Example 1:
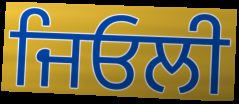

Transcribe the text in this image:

ਜਿਓਲੀ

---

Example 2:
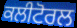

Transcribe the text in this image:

ਕਲੀਟੋਰਲ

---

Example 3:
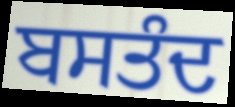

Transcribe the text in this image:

ਬਸਤੰਦ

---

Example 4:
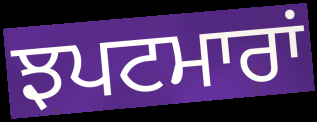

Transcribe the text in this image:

ਝਪਟਮਾਰਾਂ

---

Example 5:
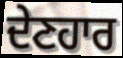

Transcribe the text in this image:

ਦੇਣਹਾਰ